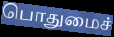
பொதுமைச்